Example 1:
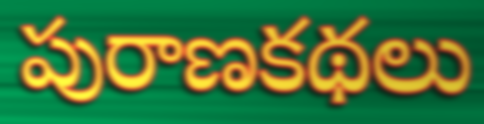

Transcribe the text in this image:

పురాణకథలు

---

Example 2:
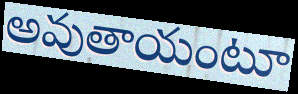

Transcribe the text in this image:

అవుతాయంటూ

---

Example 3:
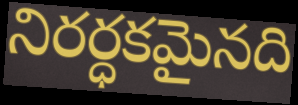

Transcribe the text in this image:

నిరర్ధకమైనది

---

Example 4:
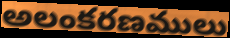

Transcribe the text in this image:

అలంకరణములు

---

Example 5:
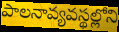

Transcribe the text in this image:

పాలనావ్యవస్థల్లోని